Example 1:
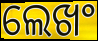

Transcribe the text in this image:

ଲେଖଂ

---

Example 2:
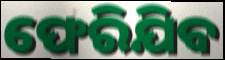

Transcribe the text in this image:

ଫେରିଯିବ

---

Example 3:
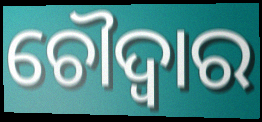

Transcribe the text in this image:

ଚୌଦ୍ବାର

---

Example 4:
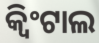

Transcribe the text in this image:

କ୍ୱିଂଟାଲ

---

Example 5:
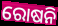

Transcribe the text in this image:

ରୋଷନି